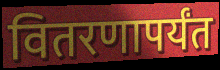
वितरणापर्यंत